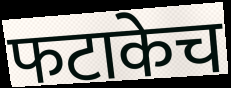
फटाकेच